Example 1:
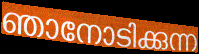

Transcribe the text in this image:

ഞാനോടിക്കുന്ന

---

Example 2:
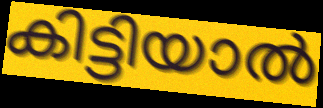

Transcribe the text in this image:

കിട്ടിയാൽ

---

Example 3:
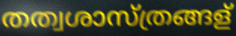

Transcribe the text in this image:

തത്വശാസ്ത്രങ്ങള്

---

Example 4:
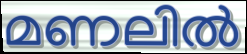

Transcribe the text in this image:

മണലിൽ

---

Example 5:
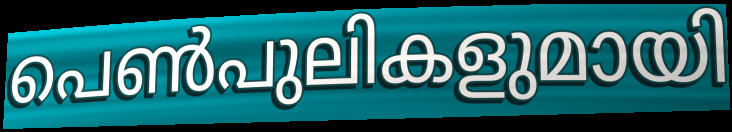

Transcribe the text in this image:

പെൺപുലികളുമായി